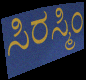
ಸಿರಸ್ಮಿಂ